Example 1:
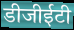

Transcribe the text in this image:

डीजीईटी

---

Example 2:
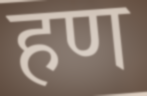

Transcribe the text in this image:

हण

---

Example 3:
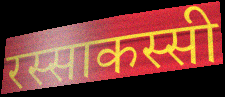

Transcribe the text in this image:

रस्साकस्सी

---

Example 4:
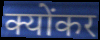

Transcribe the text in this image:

क्योंकर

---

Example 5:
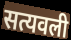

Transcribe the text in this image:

सत्यवली